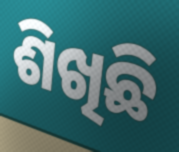
ଶିଖିଛି